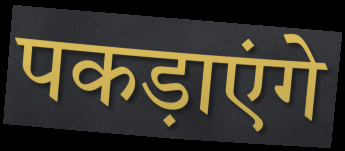
पकड़ाएंगे